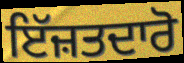
ਇੱਜ਼ਤਦਾਰੋ